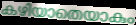
കഴിയാതെയാകും